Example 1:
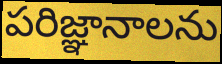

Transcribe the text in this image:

పరిజ్ఞానాలను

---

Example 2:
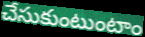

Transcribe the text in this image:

చేసుకుంటుంటాం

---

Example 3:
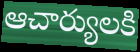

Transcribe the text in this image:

ఆచార్యులకి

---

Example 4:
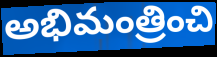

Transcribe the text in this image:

అభిమంత్రించి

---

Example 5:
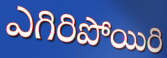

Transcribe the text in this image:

ఎగిరిపోయిరి